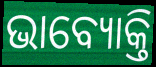
ଭାବ୍ୟୋକ୍ତି